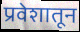
प्रवेशातून